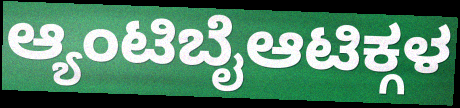
ಆ್ಯಂಟಿಬೈಆಟಿಕ್ಗಳ